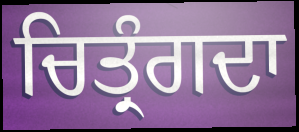
ਚਿਤ੍ਰੰਗਦਾ